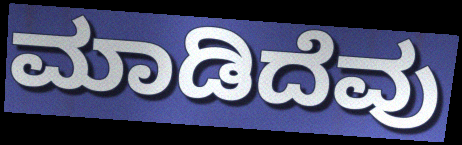
ಮಾಡಿದೆವು